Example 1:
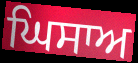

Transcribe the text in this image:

ਘਿਸਾਅ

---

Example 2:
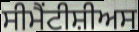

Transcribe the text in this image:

ਸੀਮੈਂਟੀਸ਼ੀਅਸ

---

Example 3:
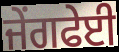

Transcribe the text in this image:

ਜੇਂਗਫੇਈ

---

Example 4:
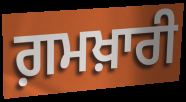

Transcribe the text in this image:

ਗ਼ਮਖ਼ਾਰੀ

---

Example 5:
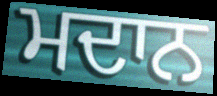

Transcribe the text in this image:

ਮਦਾਨ